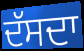
ਦੱਸਦਾ